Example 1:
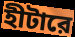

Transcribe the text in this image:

হীটারে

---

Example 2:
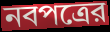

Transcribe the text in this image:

নবপত্রের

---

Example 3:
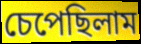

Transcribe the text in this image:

চেপেছিলাম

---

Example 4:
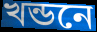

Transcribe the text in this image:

খন্ডনে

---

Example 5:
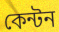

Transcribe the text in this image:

কেন্টন